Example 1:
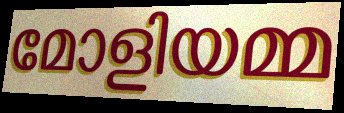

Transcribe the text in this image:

മോളിയമ്മ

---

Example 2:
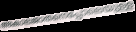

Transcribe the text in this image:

അകാലജാതനെപ്പോലെയുള്ള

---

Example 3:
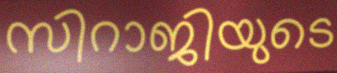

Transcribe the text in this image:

സിറാജിയുടെ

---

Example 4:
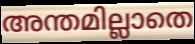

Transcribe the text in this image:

അന്തമില്ലാതെ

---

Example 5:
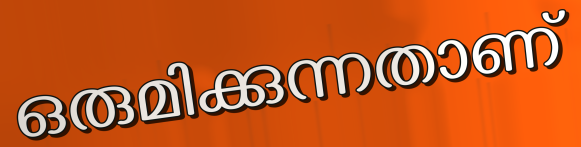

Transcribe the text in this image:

ഒരുമിക്കുന്നതാണ്